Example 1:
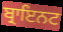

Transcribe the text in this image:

ਬ੍ਰਾਇਨਟ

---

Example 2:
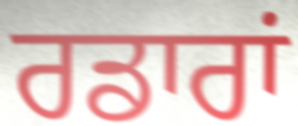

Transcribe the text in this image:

ਰਡਾਰਾਂ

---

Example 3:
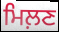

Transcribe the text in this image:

ਮਿਲ਼ਣ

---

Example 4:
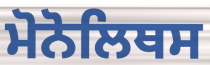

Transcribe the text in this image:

ਮੋਨੋਲਿਥਸ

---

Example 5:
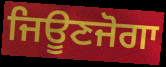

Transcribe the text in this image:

ਜਿਊਣਜੋਗਾ